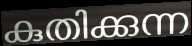
കുതിക്കുന്ന